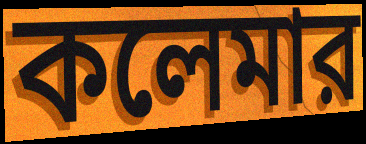
কলেমার